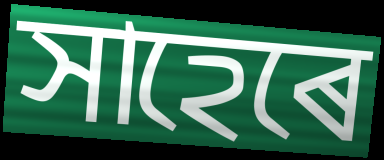
সাহেৰে